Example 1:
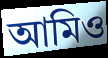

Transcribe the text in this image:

আমিও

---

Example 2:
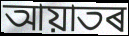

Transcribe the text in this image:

আয়াতৰ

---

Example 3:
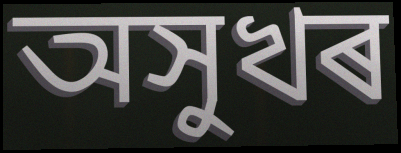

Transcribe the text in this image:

অসুখৰ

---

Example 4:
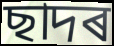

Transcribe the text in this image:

ছাদৰ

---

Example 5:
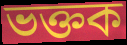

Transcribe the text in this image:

ভক্তক